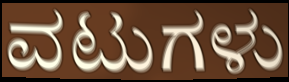
ವಟುಗಳು